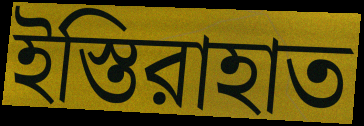
ইস্তিরাহাত